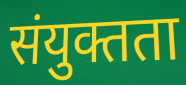
संयुक्तता